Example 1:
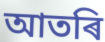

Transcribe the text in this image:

আতৰি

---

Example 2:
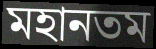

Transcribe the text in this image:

মহানতম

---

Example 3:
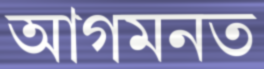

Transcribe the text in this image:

আগমনত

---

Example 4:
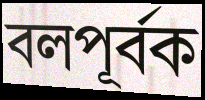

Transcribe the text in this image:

বলপূৰ্বক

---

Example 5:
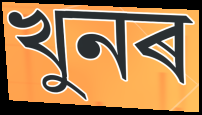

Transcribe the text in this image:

খুনৰ